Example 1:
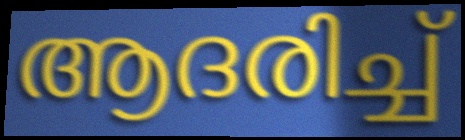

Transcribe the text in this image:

ആദരിച്ച്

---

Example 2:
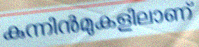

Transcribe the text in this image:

കുന്നിൻമുകളിലാണ്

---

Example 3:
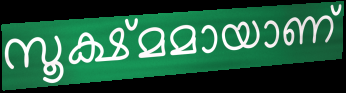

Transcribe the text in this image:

സൂക്ഷ്മമായാണ്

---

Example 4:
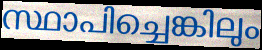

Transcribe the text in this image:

സ്ഥാപിച്ചെങ്കിലും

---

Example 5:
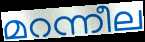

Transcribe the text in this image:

മറന്നീല